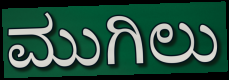
ಮುಗಿಲು